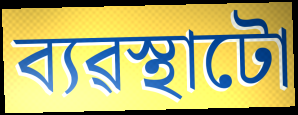
ব্যৱস্থাটো